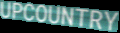
UPCOUNTRY